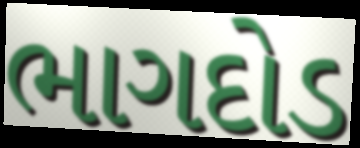
ભાગદોડ